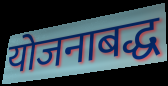
योजनाबद्ध